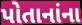
પોતાનાંના